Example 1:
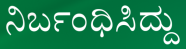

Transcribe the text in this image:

ನಿರ್ಬಂಧಿಸಿದ್ದು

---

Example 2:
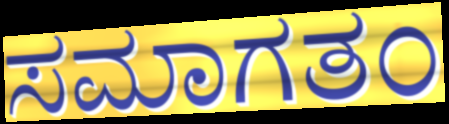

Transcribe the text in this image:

ಸಮಾಗತಂ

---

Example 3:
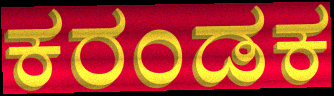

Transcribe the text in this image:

ಕರಂಡಕ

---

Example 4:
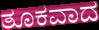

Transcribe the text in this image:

ತೂಕವಾದ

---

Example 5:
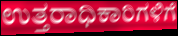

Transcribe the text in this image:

ಉತ್ತರಾಧಿಕಾರಿಗಳಿಗೆ